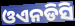
ଓଏନଡିସି